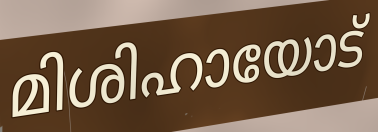
മിശിഹായോട്